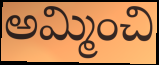
అమ్మించి